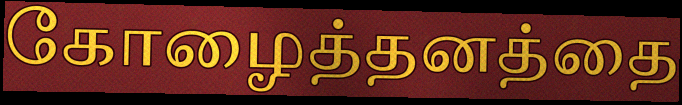
கோழைத்தனத்தை